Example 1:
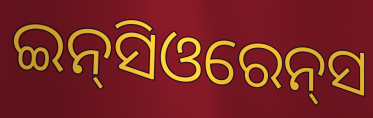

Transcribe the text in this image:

ଇନ୍‌ସିଓରେନ୍‌ସ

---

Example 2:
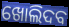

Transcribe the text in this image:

ଖୋଲିଦବ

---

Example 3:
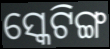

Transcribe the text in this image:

ସ୍କେଟିଙ୍ଗ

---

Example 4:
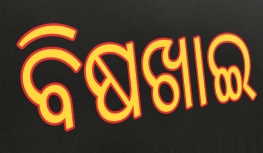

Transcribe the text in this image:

ବିଷଖାଇ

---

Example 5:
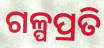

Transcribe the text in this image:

ଗଳ୍ପପ୍ରତି